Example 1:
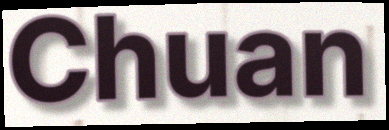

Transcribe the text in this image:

Chuan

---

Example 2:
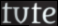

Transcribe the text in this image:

tute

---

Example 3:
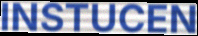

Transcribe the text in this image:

INSTUCEN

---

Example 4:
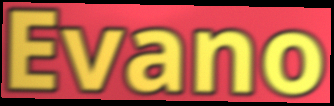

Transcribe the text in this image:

Evano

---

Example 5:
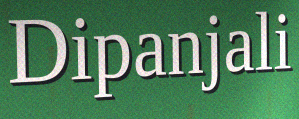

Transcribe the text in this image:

Dipanjali